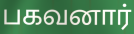
பகவனார்